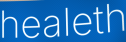
healeth